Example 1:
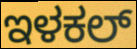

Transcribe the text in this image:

ಇಳಕಲ್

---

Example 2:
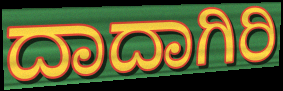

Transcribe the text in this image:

ದಾದಾಗಿರಿ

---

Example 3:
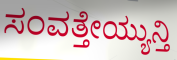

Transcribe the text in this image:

ಸಂವತ್ತೇಯ್ಯುನ್ತಿ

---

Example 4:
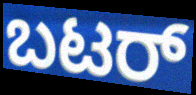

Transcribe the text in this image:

ಬಟರ್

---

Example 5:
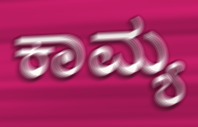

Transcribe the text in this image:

ಕಾಮ್ಯ